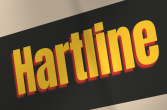
Hartline